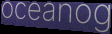
oceanog